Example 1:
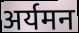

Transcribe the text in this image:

अर्यमन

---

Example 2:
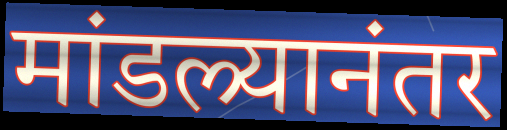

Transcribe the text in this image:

मांडल्यानंतर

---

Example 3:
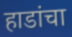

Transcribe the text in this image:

हाडांचा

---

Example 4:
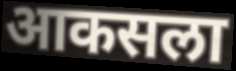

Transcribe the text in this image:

आकसला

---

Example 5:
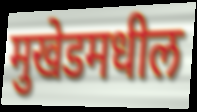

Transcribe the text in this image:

मुखेडमधील